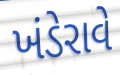
ખંડેરાવે